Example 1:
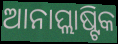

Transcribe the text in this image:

ଆନାପ୍ଲାଷ୍ଟିକ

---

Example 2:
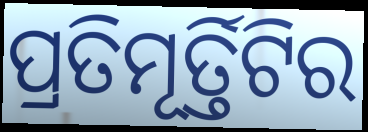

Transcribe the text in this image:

ପ୍ରତିମୂର୍ତ୍ତିଟିର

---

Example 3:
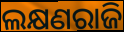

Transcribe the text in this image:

ଲକ୍ଷଣରାଜି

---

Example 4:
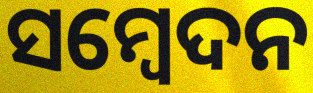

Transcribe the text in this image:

ସମ୍ଵେଦନ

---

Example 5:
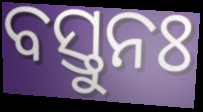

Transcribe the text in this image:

ବସ୍ତୁନଃ